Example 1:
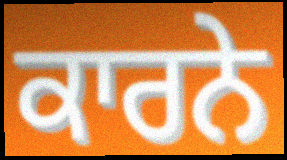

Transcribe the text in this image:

ਕਾਰਨੇ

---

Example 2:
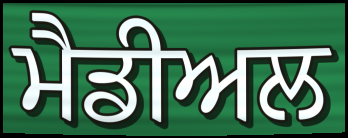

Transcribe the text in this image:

ਮੈਡੀਅਲ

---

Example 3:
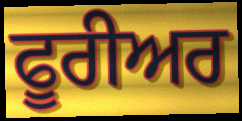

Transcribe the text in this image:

ਫੂਰੀਅਰ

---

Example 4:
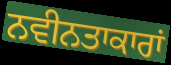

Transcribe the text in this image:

ਨਵੀਨਤਾਕਾਰਾਂ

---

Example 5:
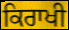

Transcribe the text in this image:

ਕਿਰਾਖੀ